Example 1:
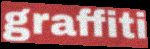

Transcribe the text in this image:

graffiti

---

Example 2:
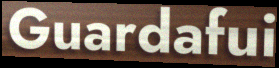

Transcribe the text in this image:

Guardafui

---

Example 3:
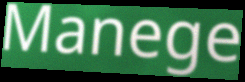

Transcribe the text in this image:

Manege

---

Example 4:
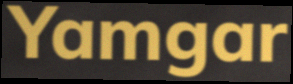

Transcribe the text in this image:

Yamgar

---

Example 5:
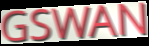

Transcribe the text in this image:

GSWAN